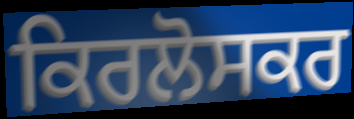
ਕਿਰਲੋਸਕਰ